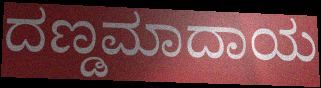
ದಣ್ಡಮಾದಾಯ